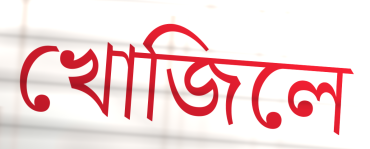
খোজিলে